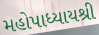
મહોપાધ્યાયશ્રી